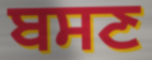
ਬਸਣ